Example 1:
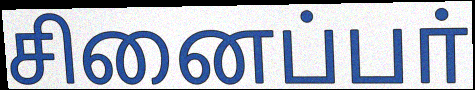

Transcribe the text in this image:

சினைப்பர்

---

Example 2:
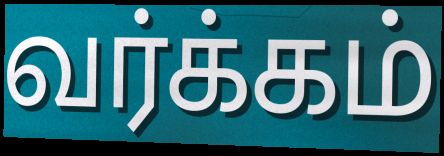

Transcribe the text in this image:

வர்க்கம்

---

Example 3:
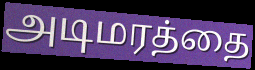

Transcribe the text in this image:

அடிமரத்தை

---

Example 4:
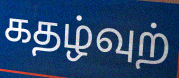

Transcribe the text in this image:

கதழ்வுற்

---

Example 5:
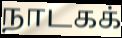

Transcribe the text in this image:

நாடகக்